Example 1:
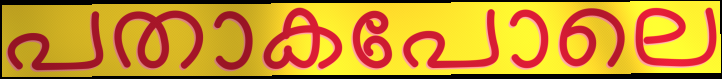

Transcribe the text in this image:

പതാകപോലെ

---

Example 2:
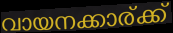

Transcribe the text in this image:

വായനക്കാര്ക്ക്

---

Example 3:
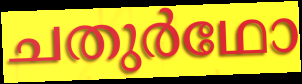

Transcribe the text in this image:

ചതുർഥോ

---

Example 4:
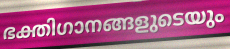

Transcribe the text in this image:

ഭക്തിഗാനങ്ങളുടെയും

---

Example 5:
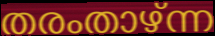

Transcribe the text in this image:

തരംതാഴ്ന്ന